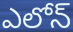
ఎలోన్